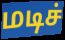
மடிச்